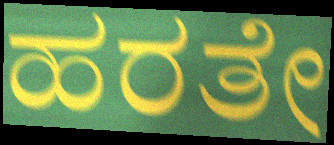
ಹರತೇ